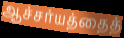
ஆச்சர்யத்தைத்